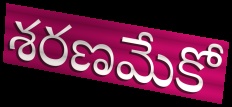
శరణమేకో